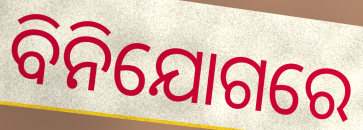
ବିନିଯୋଗରେ